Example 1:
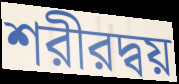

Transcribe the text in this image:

শরীরদ্বয়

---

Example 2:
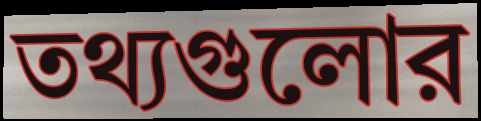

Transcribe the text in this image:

তথ্যগুলোর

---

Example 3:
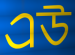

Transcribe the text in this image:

এউ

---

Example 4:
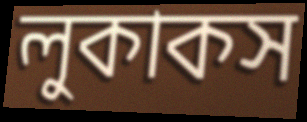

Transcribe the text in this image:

লুকাকস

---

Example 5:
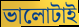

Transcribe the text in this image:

ভালোটাই